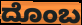
ದೊಂಬ